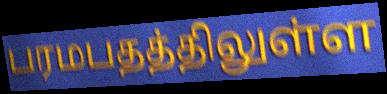
பரமபதத்திலுள்ள